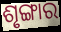
ଶୃଙ୍ଗାର